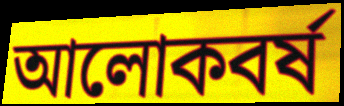
আলোকবর্ষ